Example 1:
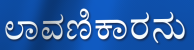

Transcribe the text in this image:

ಲಾವಣಿಕಾರನು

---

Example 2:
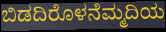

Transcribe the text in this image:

ಬಿಡದಿರೊಳನೆಮ್ಮದಿಯ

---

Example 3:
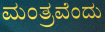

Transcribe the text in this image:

ಮಂತ್ರವೆಂದು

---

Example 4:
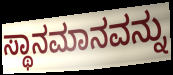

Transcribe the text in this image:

ಸ್ಥಾನಮಾನವನ್ನು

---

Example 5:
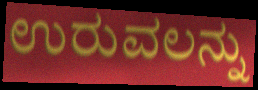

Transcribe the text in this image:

ಉರುವಲನ್ನು